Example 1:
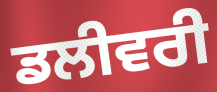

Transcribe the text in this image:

ਡਲੀਵਰੀ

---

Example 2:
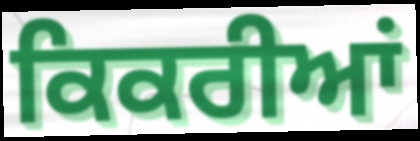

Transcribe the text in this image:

ਕਿਕਰੀਆਂ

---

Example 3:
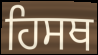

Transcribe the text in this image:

ਹਿਸਥ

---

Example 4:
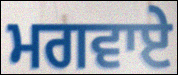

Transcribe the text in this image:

ਮਗਵਾਏ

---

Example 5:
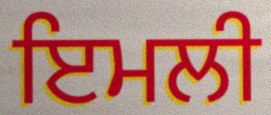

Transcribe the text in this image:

ਇਮਲੀ